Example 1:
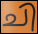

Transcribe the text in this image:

ചി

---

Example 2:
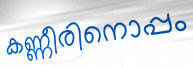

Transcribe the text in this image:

കണ്ണീരിനൊപ്പം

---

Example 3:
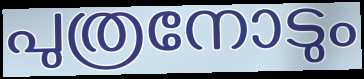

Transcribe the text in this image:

പുത്രനോടും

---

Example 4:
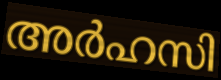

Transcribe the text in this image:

അർഹസി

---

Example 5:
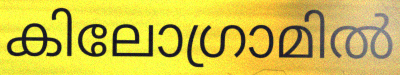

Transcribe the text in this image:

കിലോഗ്രാമിൽ